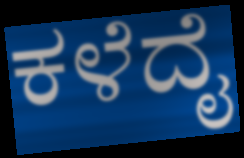
ಕಳೆದೈ